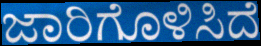
ಜಾರಿಗೊಳಿಸಿದೆ